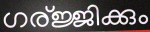
ഗര്ജ്ജിക്കും